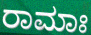
ರಾಮಾಃ